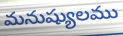
మనుష్యులము